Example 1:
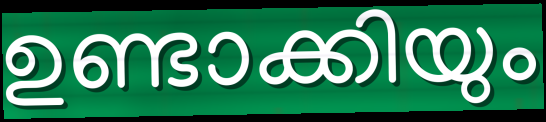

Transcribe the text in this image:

ഉണ്ടാക്കിയും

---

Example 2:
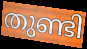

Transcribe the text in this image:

തുണ്ടി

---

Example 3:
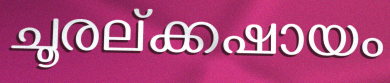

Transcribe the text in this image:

ചൂരല്ക്കഷായം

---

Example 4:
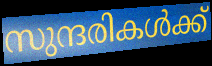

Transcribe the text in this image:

സുന്ദരികൾക്ക്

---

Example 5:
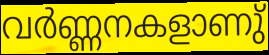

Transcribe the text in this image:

വർണ്ണനകളാണു്